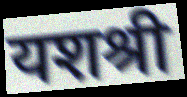
यशश्री